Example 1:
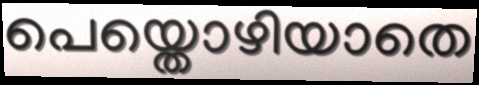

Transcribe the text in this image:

പെയ്തൊഴിയാതെ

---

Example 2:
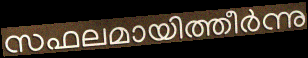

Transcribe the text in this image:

സഫലമായിത്തീർന്നു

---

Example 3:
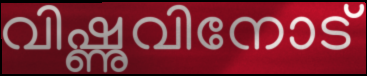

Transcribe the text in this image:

വിഷ്ണുവിനോട്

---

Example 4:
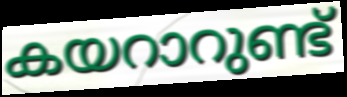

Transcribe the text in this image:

കയറാറുണ്ട്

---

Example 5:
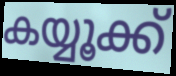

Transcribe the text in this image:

കയ്യൂക്ക്